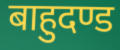
बाहुदण्ड